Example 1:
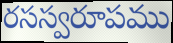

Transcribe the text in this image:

రసస్వరూపము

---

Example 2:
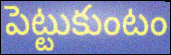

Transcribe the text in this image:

పెట్టుకుంటం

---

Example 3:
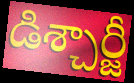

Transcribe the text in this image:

డిశ్చార్జీ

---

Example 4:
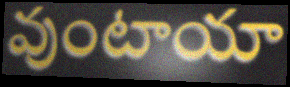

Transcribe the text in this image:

వుంటాయా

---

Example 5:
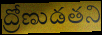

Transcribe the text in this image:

ద్రోణుడతని